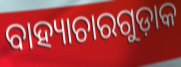
ବାହ୍ୟାଚାରଗୁଡ଼ାକ